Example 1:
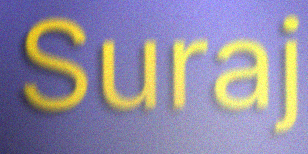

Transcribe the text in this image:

Suraj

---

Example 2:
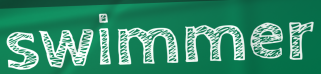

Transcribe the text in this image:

swimmer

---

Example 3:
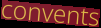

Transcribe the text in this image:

convents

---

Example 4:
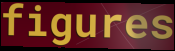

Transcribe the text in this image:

figures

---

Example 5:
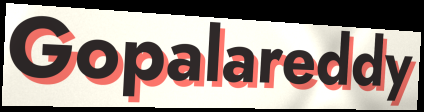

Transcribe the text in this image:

Gopalareddy